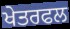
ਖੇਤਰਫਲ